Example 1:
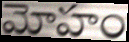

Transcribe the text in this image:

మోహం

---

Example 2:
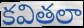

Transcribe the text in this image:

కవితలా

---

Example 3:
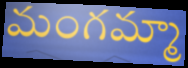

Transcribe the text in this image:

మంగమ్మా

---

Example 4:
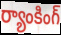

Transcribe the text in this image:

ర్యాంకింగ్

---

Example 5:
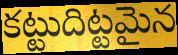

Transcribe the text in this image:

కట్టుదిట్టమైన